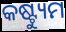
କଷ୍ଟ୍ୟୁମ